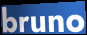
bruno